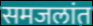
समजलांत